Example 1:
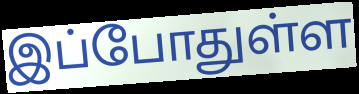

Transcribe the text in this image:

இப்போதுள்ள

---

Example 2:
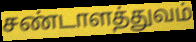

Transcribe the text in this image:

சண்டாளத்துவம்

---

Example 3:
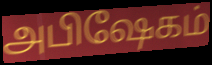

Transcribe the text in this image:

அபிஷேகம்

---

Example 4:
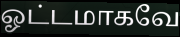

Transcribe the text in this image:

ஓட்டமாகவே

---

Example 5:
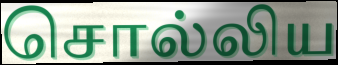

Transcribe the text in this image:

சொல்லிய